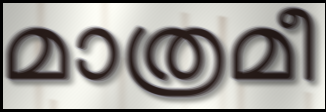
മാത്രമീ